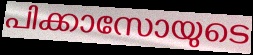
പിക്കാസോയുടെ